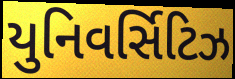
યુનિવર્સિટિઝ